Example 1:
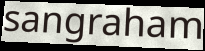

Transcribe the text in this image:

sangraham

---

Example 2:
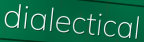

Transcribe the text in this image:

dialectical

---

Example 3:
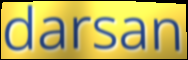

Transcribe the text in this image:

darsan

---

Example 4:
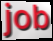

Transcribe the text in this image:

job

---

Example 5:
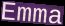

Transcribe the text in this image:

Emma